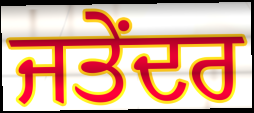
ਜਤੇਂਦਰ